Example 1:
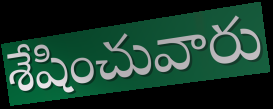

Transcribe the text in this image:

శేషించువారు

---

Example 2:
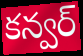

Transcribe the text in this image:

కన్వర్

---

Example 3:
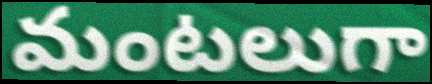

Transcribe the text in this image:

మంటలుగా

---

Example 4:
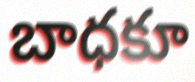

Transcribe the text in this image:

బాధకూ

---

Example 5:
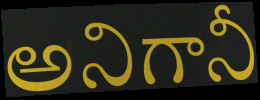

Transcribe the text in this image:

అనిగానీ